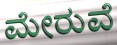
ಮೇರುವೆ